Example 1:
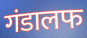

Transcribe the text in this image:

गंडालफ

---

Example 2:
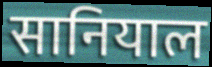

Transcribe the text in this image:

सानियाल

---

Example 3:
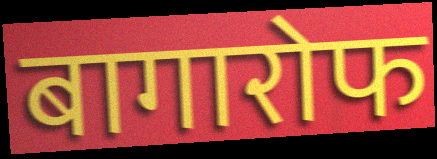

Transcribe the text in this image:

बागारोफ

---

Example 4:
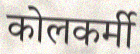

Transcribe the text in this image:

कोलकर्मी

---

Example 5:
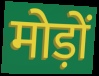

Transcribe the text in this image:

मोड़ों